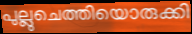
പുല്ലുചെത്തിയൊരുക്കി